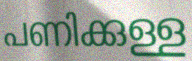
പണിക്കുള്ള